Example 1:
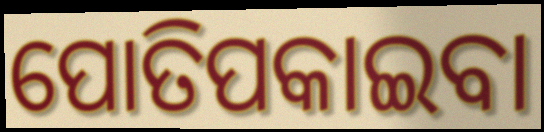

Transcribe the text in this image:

ପୋତିପକାଇବା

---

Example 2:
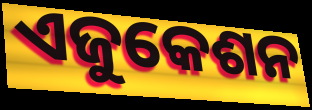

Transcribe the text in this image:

ଏଜୁକେଶନ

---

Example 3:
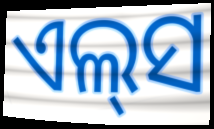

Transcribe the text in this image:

ଏଲ୍‌ସ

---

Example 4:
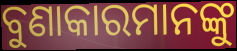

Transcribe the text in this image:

ବୁଣାକାରମାନଙ୍କୁ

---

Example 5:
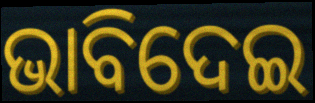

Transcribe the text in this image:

ଭାବିଦେଇ